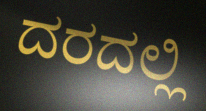
ದರದಲ್ಲಿ